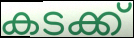
കടക്ക്